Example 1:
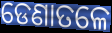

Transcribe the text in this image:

ଡେଣାତଳେ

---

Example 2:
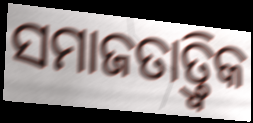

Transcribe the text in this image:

ସମାଜତାତ୍ତ୍ୱିକ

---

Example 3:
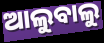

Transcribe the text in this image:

ଆଲୁବାଲୁ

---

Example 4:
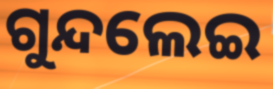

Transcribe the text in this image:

ଗୁନ୍ଦଲେଇ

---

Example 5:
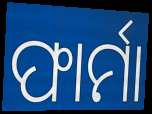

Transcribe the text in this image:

ଫାର୍ମା